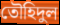
তৌহিদুল